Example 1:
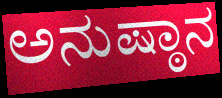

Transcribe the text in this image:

ಅನುಷ್ಠಾನ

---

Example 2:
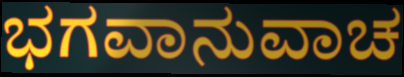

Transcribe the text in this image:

ಭಗವಾನುವಾಚ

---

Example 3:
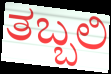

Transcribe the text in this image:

ತಬ್ಬಲಿ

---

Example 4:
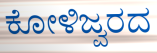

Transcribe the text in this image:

ಕೋಳಿಜ್ವರದ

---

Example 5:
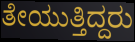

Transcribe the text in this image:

ತೇಯುತ್ತಿದ್ದರು